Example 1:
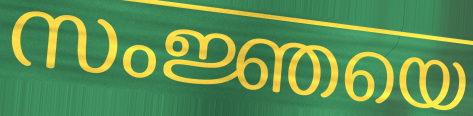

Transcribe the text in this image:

സംജ്ഞയെ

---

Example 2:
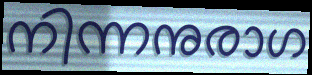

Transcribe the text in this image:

നിന്നനുരാഗ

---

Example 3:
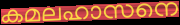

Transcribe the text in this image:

കമലഹാസനെ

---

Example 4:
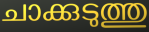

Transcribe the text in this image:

ചാക്കുടുത്തു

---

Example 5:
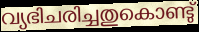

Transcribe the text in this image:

വ്യഭിചരിച്ചതുകൊണ്ടു്